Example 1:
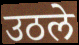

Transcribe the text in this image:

उठले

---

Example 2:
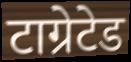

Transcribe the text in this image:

टाग्रेटेड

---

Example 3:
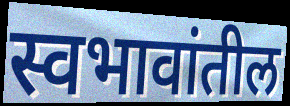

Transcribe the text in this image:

स्वभावांतील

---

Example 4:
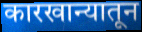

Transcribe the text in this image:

कारखान्यातून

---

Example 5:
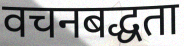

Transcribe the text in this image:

वचनबद्धता